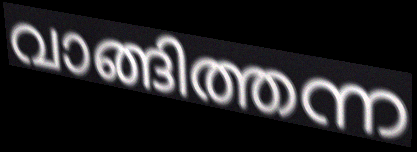
വാങ്ങിത്തന്ന